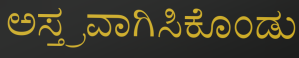
ಅಸ್ತ್ರವಾಗಿಸಿಕೊಂಡು